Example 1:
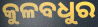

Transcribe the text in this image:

କୁଳବଧୁର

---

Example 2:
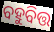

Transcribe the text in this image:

ବହୁବିତ୍ତ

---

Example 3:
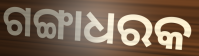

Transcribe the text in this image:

ଗଙ୍ଗାଧରକ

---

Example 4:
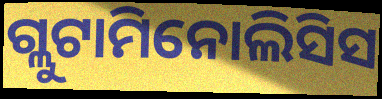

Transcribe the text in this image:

ଗ୍ଲୁଟାମିନୋଲିସିସ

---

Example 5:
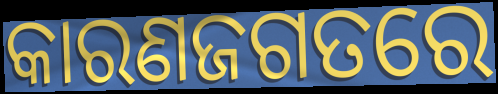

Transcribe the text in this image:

କାରଣଜଗତରେ